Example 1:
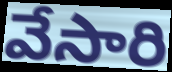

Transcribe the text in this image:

వేసారి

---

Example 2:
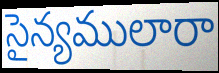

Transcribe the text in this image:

సైన్యములారా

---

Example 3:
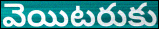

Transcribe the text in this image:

వెయిటరుకు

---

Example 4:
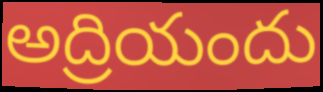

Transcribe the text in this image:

అద్రియందు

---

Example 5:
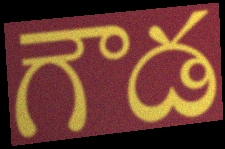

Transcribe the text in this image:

గౌడ